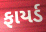
ફાયર્ડ